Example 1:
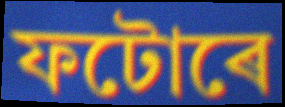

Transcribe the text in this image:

ফটোৰে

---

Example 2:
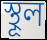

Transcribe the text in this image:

স্থূল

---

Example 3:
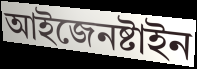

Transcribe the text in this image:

আইজেনষ্টাইন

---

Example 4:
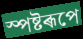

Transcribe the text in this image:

স্পষ্টৰূপে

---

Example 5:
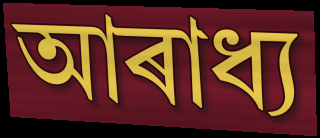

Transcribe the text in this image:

আৰাধ্য